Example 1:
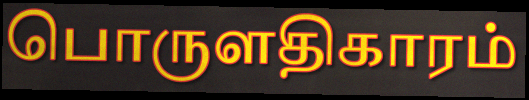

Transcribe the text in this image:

பொருளதிகாரம்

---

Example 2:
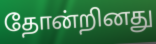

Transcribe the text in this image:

தோன்றினது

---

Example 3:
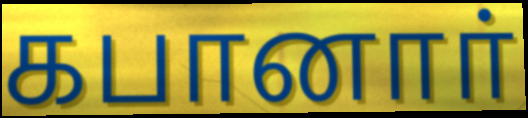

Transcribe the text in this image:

கபானார்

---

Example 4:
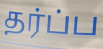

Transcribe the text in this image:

தர்ப்ப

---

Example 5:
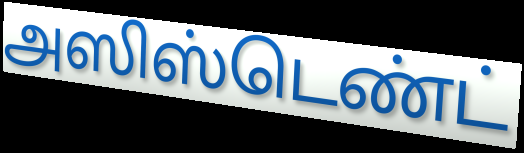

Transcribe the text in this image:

அஸிஸ்டெண்ட்